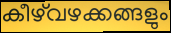
കീഴ്‌വഴക്കങ്ങളും